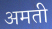
अमती